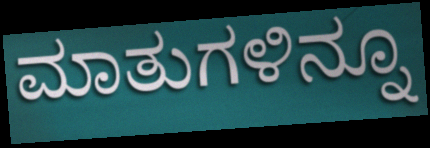
ಮಾತುಗಳಿನ್ನೂ